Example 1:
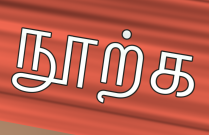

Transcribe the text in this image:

நூற்க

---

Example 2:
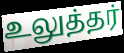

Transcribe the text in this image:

உலுத்தர்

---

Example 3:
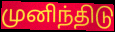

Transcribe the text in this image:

முனிந்திடு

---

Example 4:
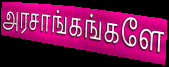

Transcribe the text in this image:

அரசாங்கங்களே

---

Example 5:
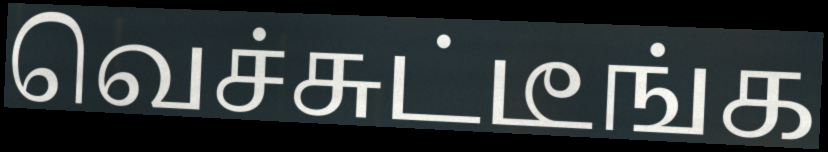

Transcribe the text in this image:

வெச்சுட்டீங்க